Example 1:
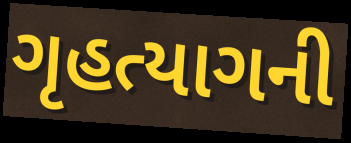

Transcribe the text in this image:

ગૃહત્યાગની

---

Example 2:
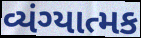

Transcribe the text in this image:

વ્યંગ્યાત્મક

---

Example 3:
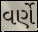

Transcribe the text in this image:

વર્ણે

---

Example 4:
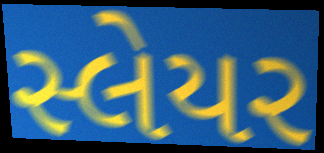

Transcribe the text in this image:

સ્લેયર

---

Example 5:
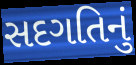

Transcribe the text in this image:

સદગતિનું